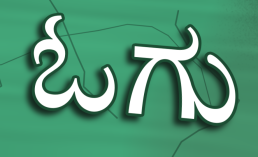
ಓಗು